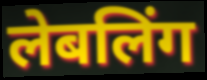
लेबलिंग